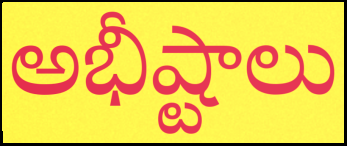
అభీష్టాలు